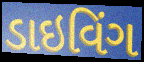
ડાઇવિંગ